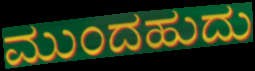
ಮುಂದಹುದು